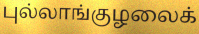
புல்லாங்குழலைக்